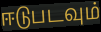
ஈடுபடவும்